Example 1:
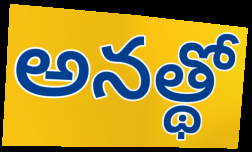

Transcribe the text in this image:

అనత్థో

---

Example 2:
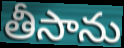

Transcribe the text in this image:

తీసాను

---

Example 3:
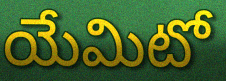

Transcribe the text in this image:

యేమిటో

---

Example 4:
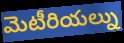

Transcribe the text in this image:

మెటీరియల్ను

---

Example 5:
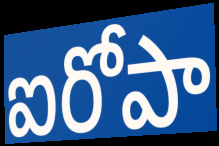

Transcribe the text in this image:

ఐరోపా